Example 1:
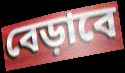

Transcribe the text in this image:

বেড়াবে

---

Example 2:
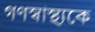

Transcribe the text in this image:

গণস্বাস্থ্যকে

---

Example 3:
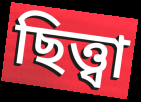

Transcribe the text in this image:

ছিত্ত্বা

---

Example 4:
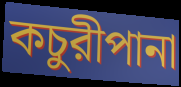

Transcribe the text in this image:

কচুরীপানা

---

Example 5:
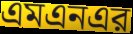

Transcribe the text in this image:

এমএনএর